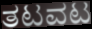
ತಟವಟ